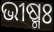
ଭୀଷ୍ମଃ